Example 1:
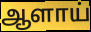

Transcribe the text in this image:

ஆளாய்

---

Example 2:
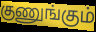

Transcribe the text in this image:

குணுங்கும்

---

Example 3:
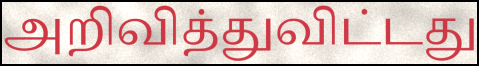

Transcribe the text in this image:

அறிவித்துவிட்டது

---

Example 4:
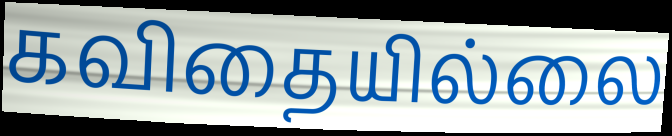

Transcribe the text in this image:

கவிதையில்லை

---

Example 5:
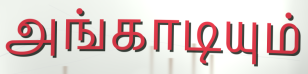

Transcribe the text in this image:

அங்காடியும்